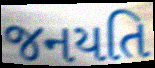
જનયતિ